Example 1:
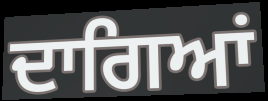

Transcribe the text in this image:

ਦਾਗਿਆਂ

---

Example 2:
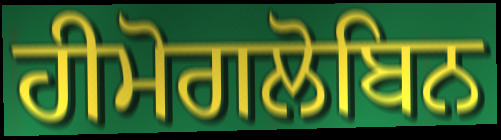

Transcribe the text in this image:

ਹੀਮੋਗਲੋਬਿਨ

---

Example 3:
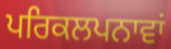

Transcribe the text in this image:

ਪਰਿਕਲਪਨਾਵਾਂ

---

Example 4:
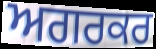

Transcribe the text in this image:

ਅਗਰਕਰ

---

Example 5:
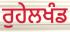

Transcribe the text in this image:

ਰੁਹੇਲਖੰਡ